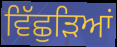
ਵਿੱਛੁੜਿਆਂ